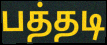
பத்தடி